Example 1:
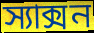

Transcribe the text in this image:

স্যাক্সন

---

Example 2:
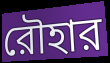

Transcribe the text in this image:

রৌহার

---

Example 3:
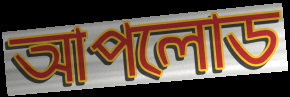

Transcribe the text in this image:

আপলোড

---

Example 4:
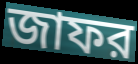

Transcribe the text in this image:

জাফর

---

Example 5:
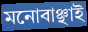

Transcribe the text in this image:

মনোবাঞ্ছাই